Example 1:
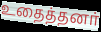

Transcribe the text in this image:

உதைத்தனர்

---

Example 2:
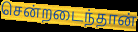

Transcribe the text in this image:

சென்றடைந்தான்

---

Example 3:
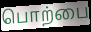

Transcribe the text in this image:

பொற்பை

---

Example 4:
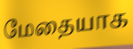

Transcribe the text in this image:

மேதையாக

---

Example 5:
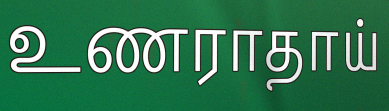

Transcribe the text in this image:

உணராதாய்